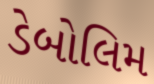
ડેબોલિમ